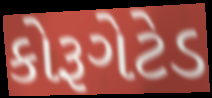
કોરૂગેટેડ